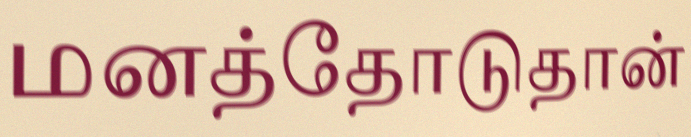
மனத்தோடுதான்